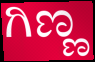
ಗಿಣ್ಣ